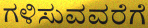
ಗಳಿಸುವವರೆಗೆ